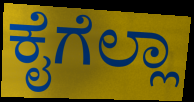
ಕೈಗೆಲ್ಲಾ